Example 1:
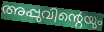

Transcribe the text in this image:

അപ്പുവിന്റെയും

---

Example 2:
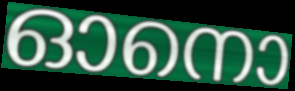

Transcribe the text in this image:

ഓനൊ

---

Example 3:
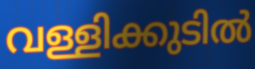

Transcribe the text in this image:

വള്ളിക്കുടിൽ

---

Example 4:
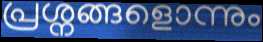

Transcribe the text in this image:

പ്രശ്നങ്ങളൊന്നും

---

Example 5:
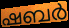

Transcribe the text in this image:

ഷബർ